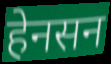
हेनसन